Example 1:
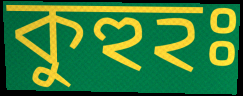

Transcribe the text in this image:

কুহুহঃ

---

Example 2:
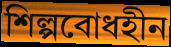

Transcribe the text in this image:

শিল্পবোধহীন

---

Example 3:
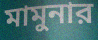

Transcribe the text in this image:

মামুনার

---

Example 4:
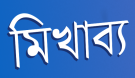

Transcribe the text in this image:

মিখাব্য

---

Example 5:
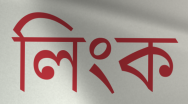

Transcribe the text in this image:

লিংক